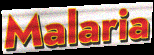
Malaria